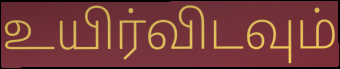
உயிர்விடவும்